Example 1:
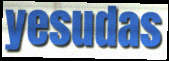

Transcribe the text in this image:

yesudas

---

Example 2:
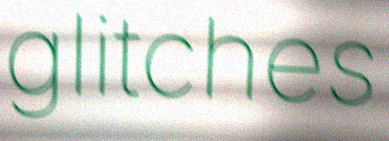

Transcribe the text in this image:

glitches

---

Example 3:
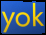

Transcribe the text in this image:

yok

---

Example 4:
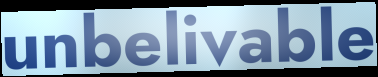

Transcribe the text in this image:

unbelivable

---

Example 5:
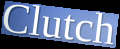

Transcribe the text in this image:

Clutch